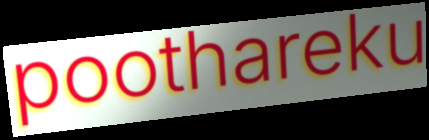
poothareku